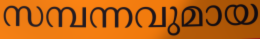
സമ്പന്നവുമായ